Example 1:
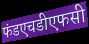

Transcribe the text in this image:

फंडएचडीएफसी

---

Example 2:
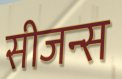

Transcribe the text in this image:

सीजन्स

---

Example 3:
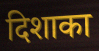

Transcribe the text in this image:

दिशाका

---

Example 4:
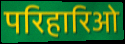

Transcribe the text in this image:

परिहारिओ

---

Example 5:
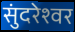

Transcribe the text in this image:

सुंदरेश्वर